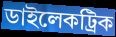
ডাইলেকট্রিক